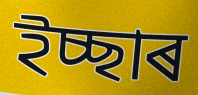
ইচ্ছাৰ